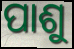
ପାଶୁ